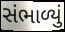
સંભાળ્યું